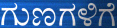
ಗುಣಗಳಿಗೆ